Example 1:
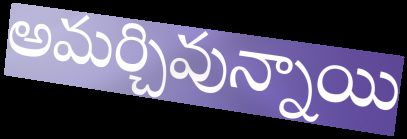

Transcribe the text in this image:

అమర్చివున్నాయి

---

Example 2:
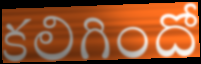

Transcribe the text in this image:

కలిగిందో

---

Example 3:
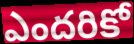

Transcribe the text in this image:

ఎందరికో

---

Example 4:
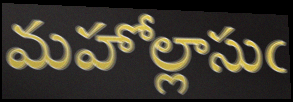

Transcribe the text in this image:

మహోల్లాసుఁ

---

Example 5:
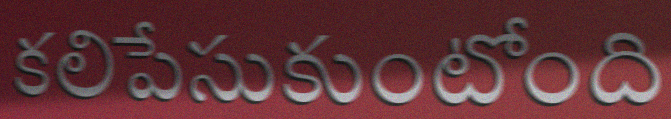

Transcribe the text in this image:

కలిపేసుకుంటోంది